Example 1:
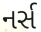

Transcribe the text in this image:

નર્સ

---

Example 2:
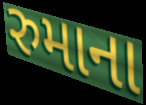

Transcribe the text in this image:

રુમાના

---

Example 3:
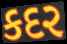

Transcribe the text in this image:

કદર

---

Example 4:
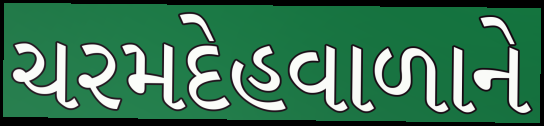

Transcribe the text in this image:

ચરમદેહવાળાને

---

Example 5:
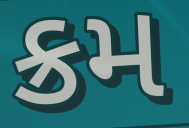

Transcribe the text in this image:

ક્રમ